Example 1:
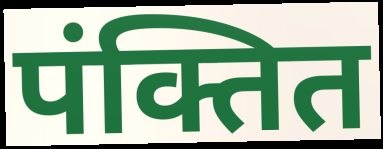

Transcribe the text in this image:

पंक्तित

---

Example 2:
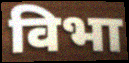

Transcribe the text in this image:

विभा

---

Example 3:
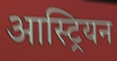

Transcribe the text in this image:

आस्ट्रियन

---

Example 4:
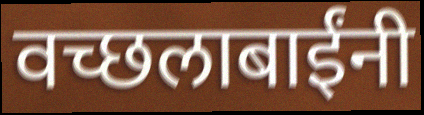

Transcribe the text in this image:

वच्छलाबाईंनी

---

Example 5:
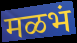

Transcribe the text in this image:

मळभं